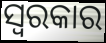
ସ୍ୱରକାର